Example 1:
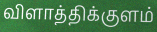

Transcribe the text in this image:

விளாத்திக்குளம்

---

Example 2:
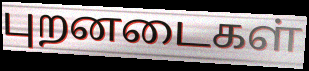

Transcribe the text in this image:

புறனடைகள்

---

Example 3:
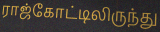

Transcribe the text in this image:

ராஜ்கோட்டிலிருந்து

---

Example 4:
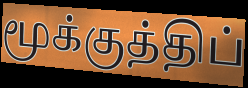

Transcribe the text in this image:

மூக்குத்திப்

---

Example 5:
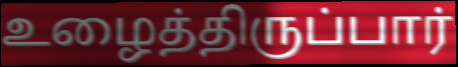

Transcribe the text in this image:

உழைத்திருப்பார்